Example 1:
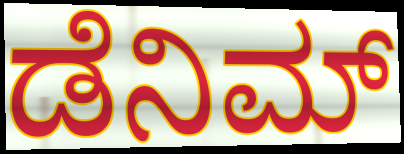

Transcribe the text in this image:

ಡೆನಿಮ್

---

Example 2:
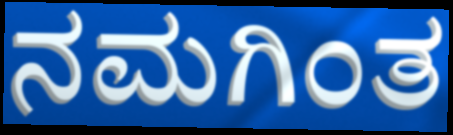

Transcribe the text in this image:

ನಮಗಿಂತ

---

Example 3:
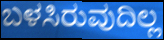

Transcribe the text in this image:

ಬಳಸಿರುವುದಿಲ್ಲ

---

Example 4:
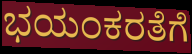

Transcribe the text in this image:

ಭಯಂಕರತೆಗೆ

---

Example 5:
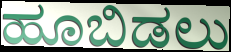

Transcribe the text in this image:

ಹೂಬಿಡಲು